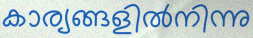
കാര്യങ്ങളിൽനിന്നു